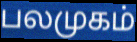
பலமுகம்